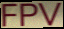
FPV